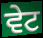
ਵੇਟ